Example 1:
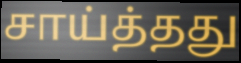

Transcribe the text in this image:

சாய்த்தது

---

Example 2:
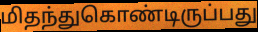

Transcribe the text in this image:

மிதந்துகொண்டிருப்பது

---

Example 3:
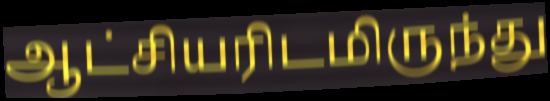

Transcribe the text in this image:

ஆட்சியரிடமிருந்து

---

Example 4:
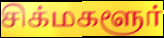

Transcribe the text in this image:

சிக்மகளூர்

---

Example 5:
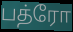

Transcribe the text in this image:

பத்ரோ